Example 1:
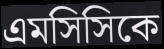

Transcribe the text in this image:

এমসিসিকে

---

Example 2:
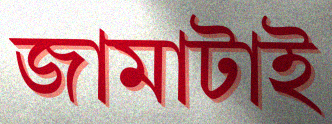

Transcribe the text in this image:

জামাটাই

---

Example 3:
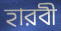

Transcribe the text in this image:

হারবী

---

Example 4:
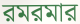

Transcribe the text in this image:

রমরমার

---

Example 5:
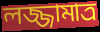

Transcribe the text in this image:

লজ্জামাত্র